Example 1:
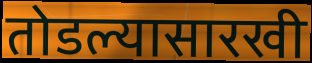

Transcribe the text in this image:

तोडल्यासारखी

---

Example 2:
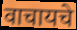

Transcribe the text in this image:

वाचायचे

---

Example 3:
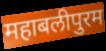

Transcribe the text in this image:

महाबलीपुरम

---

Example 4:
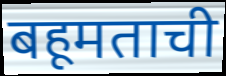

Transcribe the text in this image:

बहूमताची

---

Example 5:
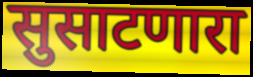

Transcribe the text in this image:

सुसाटणारा